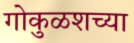
गोकुळशच्या